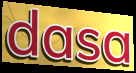
dasa